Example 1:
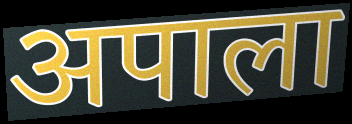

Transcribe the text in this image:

अपाला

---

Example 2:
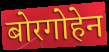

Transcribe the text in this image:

बोरगोहेन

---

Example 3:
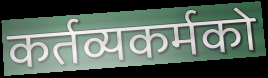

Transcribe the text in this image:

कर्तव्यकर्मको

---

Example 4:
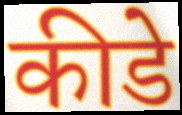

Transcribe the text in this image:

कीडे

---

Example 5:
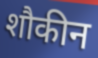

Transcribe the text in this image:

शौकीन